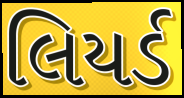
લિયર્ડ